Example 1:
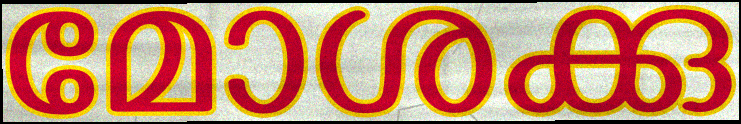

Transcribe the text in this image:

മോശക്കു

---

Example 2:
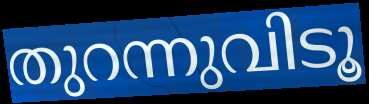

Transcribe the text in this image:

തുറന്നുവിടൂ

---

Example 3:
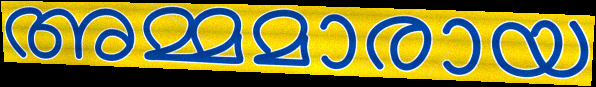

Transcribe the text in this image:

അമ്മമാരായ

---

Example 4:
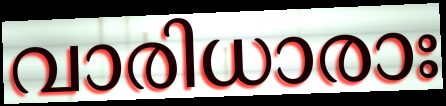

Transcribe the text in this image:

വാരിധാരാഃ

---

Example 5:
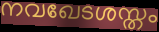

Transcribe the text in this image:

നവഖേടശസ്തം